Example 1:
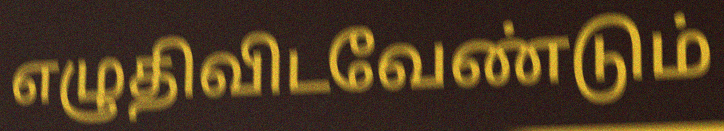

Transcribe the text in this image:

எழுதிவிடவேண்டும்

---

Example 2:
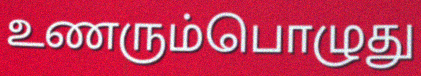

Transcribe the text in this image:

உணரும்பொழுது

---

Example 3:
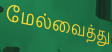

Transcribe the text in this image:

மேல்வைத்து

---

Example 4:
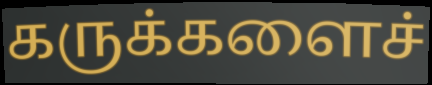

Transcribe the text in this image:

கருக்களைச்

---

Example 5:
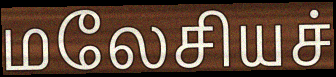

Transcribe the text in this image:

மலேசியச்